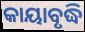
କାୟାବୃଦ୍ଧି